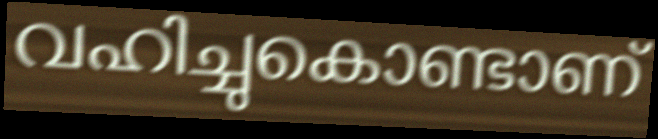
വഹിച്ചുകൊണ്ടാണ്